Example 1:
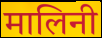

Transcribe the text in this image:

मालिनी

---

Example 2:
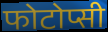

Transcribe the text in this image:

फोटोप्सी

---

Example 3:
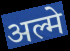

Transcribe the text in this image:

अल्मे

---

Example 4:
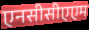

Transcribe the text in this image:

एनसीसीएएम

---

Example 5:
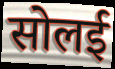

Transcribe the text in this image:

सोलई